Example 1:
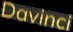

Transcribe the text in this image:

Davinci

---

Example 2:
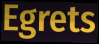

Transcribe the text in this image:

Egrets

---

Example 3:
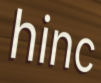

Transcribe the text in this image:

hinc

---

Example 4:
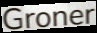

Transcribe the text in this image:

Groner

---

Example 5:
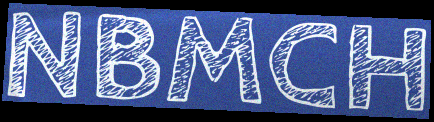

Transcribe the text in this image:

NBMCH